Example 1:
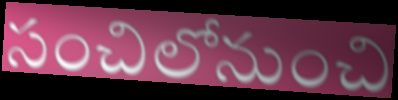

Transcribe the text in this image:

సంచిలోనుంచి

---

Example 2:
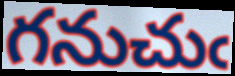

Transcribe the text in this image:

గనుచుఁ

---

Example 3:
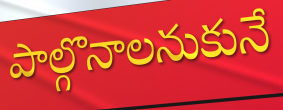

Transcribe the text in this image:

పాల్గొనాలనుకునే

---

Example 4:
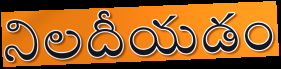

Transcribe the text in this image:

నిలదీయడం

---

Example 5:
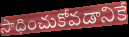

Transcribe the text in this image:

సాధించుకోవడానికే